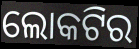
ଲୋକଟିର